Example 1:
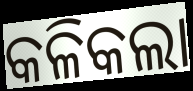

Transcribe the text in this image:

କଳିକଲା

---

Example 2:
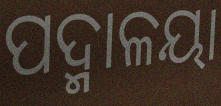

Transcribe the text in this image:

ପଦ୍ମାଳୟା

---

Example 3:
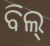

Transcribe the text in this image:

ବିଲ୍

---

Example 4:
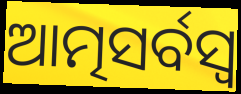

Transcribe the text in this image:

ଆତ୍ମସର୍ବସ୍ଵ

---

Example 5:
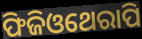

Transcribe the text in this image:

ଫିଜିଓଥେରାପି